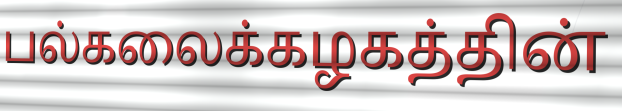
பல்கலைக்கழகத்தின்